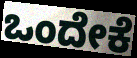
ಒಂದೇಕೆ